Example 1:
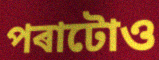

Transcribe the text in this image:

পৰাটোও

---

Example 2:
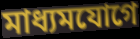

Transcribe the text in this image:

মাধ্যমযোগে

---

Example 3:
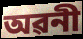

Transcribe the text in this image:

অৱনী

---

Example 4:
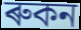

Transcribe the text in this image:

ৰুকন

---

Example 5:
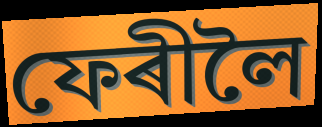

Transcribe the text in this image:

ফেৰীলৈ